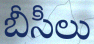
బీసీలు